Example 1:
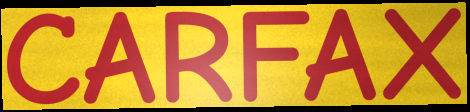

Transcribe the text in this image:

CARFAX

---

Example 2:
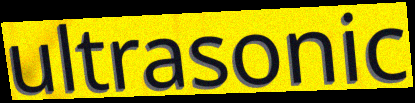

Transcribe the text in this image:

ultrasonic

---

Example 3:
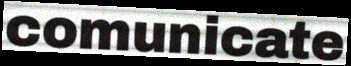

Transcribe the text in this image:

comunicate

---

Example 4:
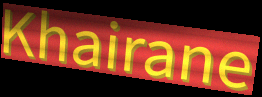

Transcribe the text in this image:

Khairane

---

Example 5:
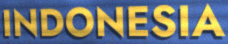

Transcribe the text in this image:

INDONESIA